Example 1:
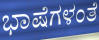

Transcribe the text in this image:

ಭಾಷೆಗಳಂತೆ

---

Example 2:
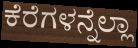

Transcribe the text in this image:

ಕೆರೆಗಳನ್ನೆಲ್ಲಾ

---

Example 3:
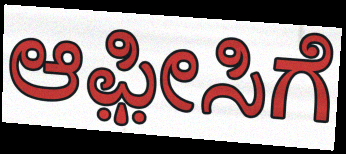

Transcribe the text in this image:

ಆಫ಼ೀಸಿಗೆ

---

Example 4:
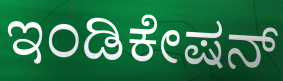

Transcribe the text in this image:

ಇಂಡಿಕೇಷನ್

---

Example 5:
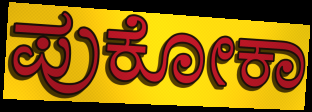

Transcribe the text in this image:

ಪುಕೋಕಾ